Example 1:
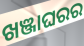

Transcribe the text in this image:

ଖଞ୍ଜାଘରର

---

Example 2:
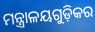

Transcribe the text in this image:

ମନ୍ତ୍ରାଳୟଗୁଡ଼ିକର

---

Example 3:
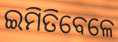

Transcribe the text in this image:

ଇମିତିବେଳେ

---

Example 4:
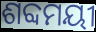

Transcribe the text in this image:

ଶବ୍ଦମୟୀ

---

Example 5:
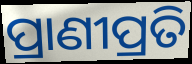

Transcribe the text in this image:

ପ୍ରାଣୀପ୍ରତି